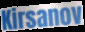
Kirsanov